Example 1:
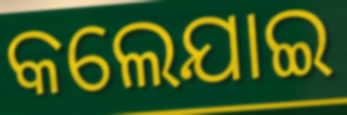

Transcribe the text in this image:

କଲେଯାଇ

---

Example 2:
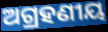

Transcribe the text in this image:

ଅଗ୍ରହଣୀୟ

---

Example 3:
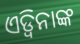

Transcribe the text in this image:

ଏଡ୍ୱିନାଙ୍କ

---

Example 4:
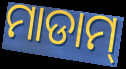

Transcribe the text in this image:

ମାଡାମ୍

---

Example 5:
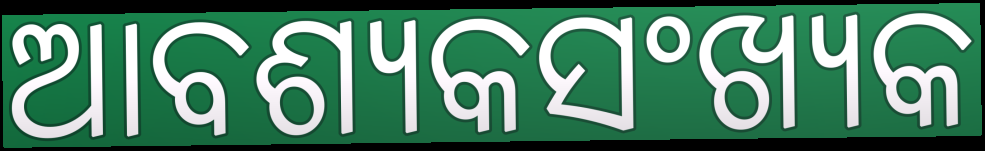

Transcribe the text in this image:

ଆବଶ୍ୟକସଂଖ୍ୟକ